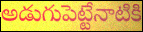
అడుగుపెట్టేనాటికి